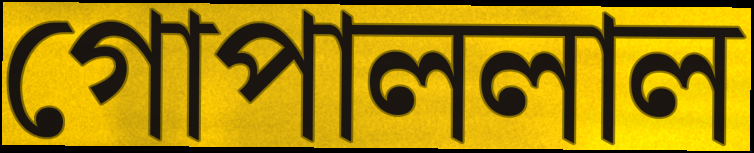
গোপাললাল